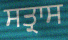
ਸਤ੍ਰਾਸ